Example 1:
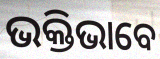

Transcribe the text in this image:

ଭକ୍ତିଭାବେ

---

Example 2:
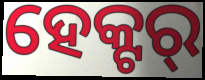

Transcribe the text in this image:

ହେକ୍ଟର୍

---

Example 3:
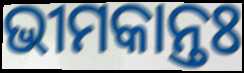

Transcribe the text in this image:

ଭୀମକାନ୍ତଃ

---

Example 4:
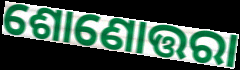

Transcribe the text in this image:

ଶୋଣୋତ୍ତରା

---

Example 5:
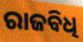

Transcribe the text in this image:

ରାଜବିଧି